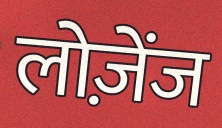
लोज़ेंज